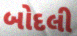
બોદલી